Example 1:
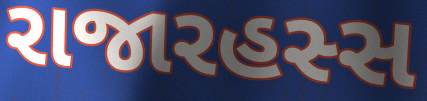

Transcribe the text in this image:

રાજારહસ્સ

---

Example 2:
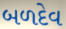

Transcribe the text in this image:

બળદેવ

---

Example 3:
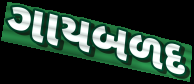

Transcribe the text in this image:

ગાયબળદ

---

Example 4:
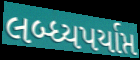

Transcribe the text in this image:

લબ્ધ્યપર્યાપ્ત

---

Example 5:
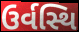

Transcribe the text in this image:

ઉર્વસ્થિ